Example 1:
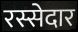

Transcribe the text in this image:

रस्सेदार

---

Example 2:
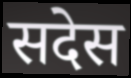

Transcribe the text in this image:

सदेस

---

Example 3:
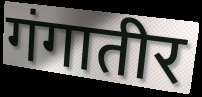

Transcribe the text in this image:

गंगातीर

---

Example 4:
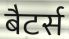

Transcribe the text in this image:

बैटर्स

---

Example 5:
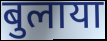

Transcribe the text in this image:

बुलाया